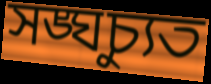
সঙ্ঘচ্যুত